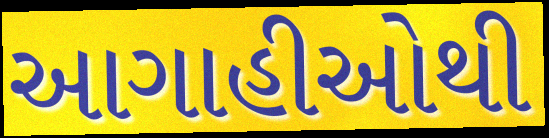
આગાહીઓથી